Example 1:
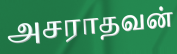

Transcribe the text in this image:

அசராதவன்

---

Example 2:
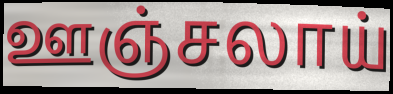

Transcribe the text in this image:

ஊஞ்சலாய்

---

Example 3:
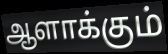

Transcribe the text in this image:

ஆளாக்கும்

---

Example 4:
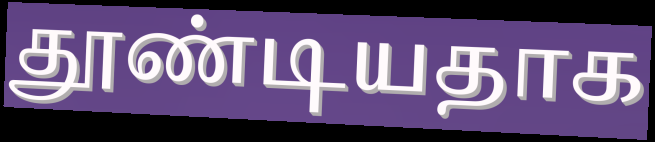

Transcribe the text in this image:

தூண்டியதாக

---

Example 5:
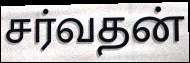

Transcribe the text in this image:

சர்வதன்